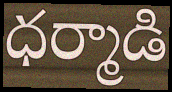
ధర్మాడి